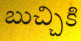
బుచ్చికి